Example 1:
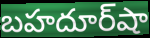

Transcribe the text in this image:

బహదూర్‌షా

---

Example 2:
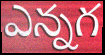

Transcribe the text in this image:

ఎన్నగ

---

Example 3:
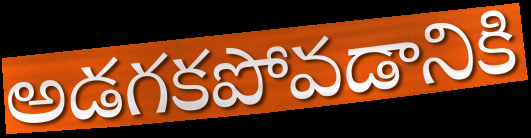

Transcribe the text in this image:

అడగకపోవడానికి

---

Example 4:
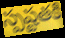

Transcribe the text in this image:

స్పష్టతకి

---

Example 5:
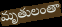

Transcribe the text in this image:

మృతులంతా